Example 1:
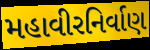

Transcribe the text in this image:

મહાવીરનિર્વાણ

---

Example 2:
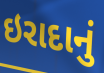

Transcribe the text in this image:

ઇરાદાનું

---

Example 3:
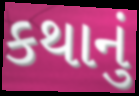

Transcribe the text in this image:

કથાનું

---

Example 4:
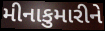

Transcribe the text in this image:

મીનાકુમારીને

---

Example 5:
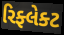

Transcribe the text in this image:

રિફ્લેક્ટ